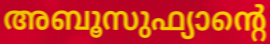
അബൂസുഫ്യാന്റെ